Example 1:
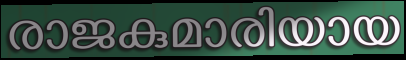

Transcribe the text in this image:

രാജകുമാരിയായ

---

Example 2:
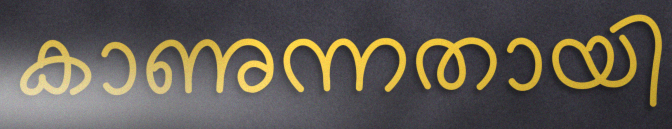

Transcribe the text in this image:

കാണുന്നതായി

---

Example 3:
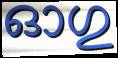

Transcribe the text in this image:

ഓഗു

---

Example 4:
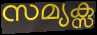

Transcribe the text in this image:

സമ്യക്സ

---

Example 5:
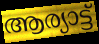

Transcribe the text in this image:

ആര്യാട്ട്